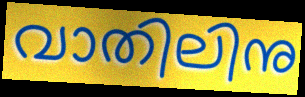
വാതിലിനു